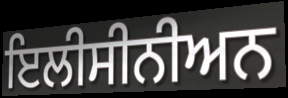
ਇਲੀਸੀਨੀਅਨ